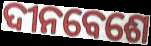
ଦୀନବେଶେ